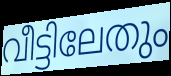
വീട്ടിലേതും